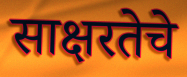
साक्षरतेचे